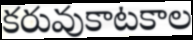
కరువుకాటకాల